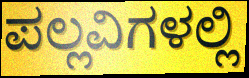
ಪಲ್ಲವಿಗಳಲ್ಲಿ